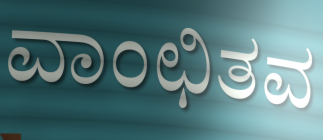
ವಾಂಛಿತವ